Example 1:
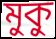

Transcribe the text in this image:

মুকু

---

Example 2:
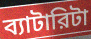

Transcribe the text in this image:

ব্যাটারিটা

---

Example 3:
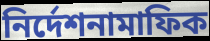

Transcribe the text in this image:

নির্দেশনামাফিক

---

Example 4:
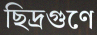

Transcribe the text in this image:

ছিদ্রগুণে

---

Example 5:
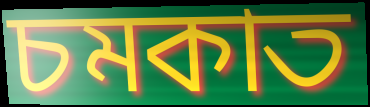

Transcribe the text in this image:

চমকাত